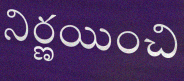
నిర్ణయించి